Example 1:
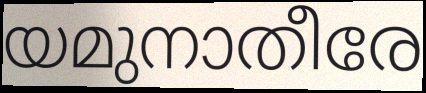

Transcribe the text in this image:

യമുനാതീരേ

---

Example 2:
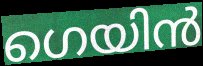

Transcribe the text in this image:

ഗെയിൻ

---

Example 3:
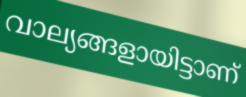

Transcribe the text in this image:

വാല്യങ്ങളായിട്ടാണ്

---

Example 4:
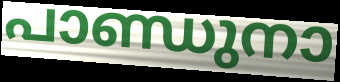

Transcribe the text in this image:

പാണ്ഡുനാ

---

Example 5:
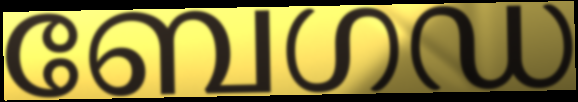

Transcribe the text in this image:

ബേഗഡ